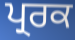
ਪ੍ਰਰਕ